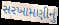
સરખામણીનું